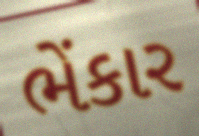
ભેંકાર